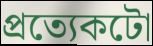
প্ৰত্যেকটো